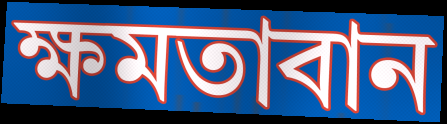
ক্ষমতাবান